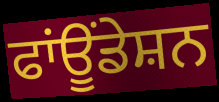
ਫਾਂਊਂਡੇਸ਼ਨ